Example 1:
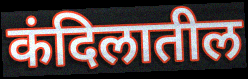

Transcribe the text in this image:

कंदिलातील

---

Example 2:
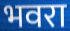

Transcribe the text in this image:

भवरा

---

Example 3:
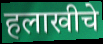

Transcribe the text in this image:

हलाखीचे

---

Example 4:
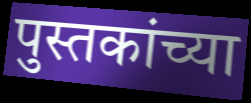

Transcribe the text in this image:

पुस्तकांच्या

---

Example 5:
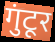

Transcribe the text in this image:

गुंटूर